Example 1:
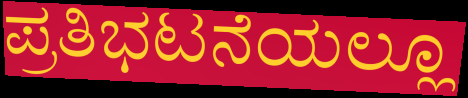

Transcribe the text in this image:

ಪ್ರತಿಭಟನೆಯಲ್ಲೂ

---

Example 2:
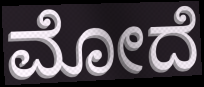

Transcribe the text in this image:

ಮೋದೆ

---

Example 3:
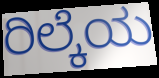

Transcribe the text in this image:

ರಿಲ್ಕೆಯ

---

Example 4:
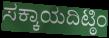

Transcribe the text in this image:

ಸಕ್ಕಾಯದಿಟ್ಠಿಂ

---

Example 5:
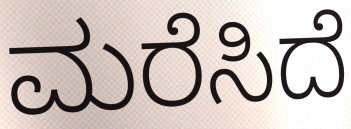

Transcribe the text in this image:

ಮರೆಸಿದೆ